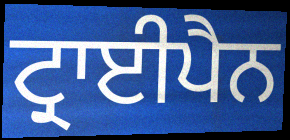
ਟ੍ਰਾਈਪੈਨ